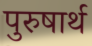
पुरुषार्थ